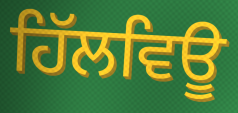
ਹਿੱਲਵਿਊ